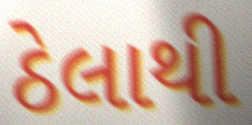
ઠેલાથી